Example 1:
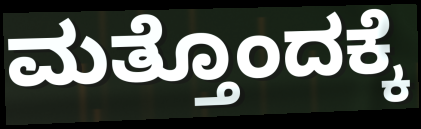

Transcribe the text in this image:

ಮತ್ತೊಂದಕ್ಕೆ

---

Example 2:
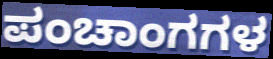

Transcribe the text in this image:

ಪಂಚಾಂಗಗಳ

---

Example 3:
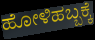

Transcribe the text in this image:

ಹೋಳಿಹಬ್ಬಕ್ಕೆ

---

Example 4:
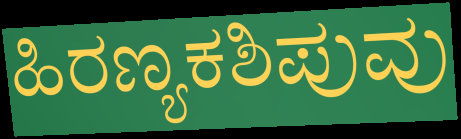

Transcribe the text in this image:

ಹಿರಣ್ಯಕಶಿಪುವು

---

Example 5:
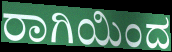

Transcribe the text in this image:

ರಾಗಿಯಿಂದ